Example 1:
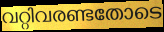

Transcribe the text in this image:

വറ്റിവരണ്ടതോടെ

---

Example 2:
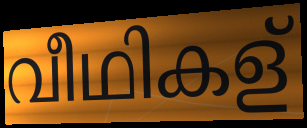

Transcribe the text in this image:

വീഥികള്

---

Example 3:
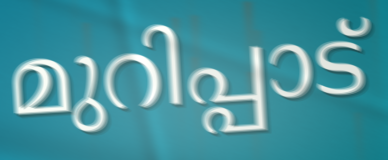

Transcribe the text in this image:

മുറിപ്പാട്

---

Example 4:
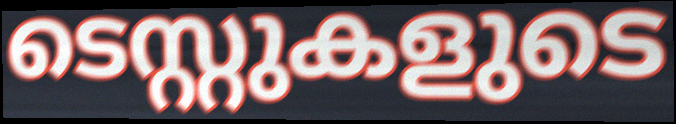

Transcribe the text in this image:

ടെസ്റ്റുകളുടെ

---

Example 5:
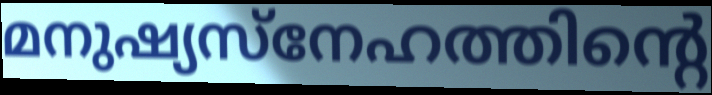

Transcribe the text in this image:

മനുഷ്യസ്നേഹത്തിന്റെ